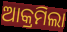
ଆକ୍ରମିଲା